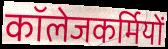
कॉलेजकर्मियों